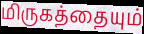
மிருகத்தையும்